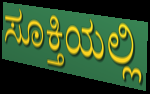
ಸೂಕ್ತಿಯಲ್ಲಿ